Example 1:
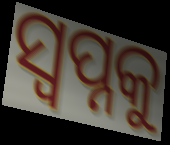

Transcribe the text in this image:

ସ୍ୱପ୍ନକୁ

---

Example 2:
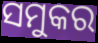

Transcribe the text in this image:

ସମୁକର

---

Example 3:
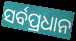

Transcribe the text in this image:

ସର୍ବପ୍ରଧାନ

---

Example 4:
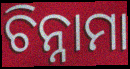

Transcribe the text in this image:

ଚିନ୍ନାମା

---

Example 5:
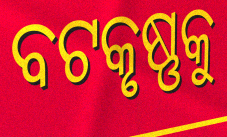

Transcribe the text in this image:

ବଟକୃଷ୍ଣକୁ